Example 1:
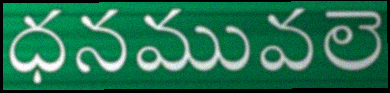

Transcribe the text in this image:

ధనమువలె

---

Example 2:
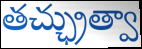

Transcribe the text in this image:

తచ్ఛ్రుత్వా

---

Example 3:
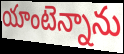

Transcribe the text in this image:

యాంటెన్నాను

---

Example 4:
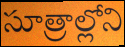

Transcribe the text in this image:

సూత్రాల్లోని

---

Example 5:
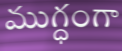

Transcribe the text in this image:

ముగ్ధంగా